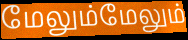
மேலும்மேலும்